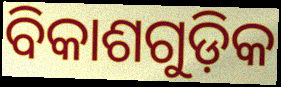
ବିକାଶଗୁଡ଼ିକ